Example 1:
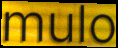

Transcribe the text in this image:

mulo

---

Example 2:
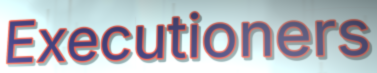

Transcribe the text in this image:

Executioners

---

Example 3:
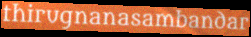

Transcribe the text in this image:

thirugnanasambandar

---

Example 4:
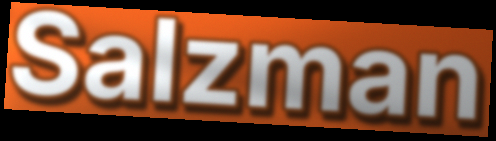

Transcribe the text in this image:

Salzman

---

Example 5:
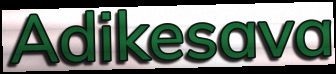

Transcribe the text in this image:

Adikesava